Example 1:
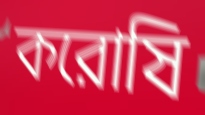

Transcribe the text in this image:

করোষি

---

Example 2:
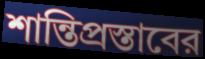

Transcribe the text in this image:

শান্তিপ্রস্তাবের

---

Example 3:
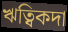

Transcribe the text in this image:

ঋত্বিকদা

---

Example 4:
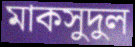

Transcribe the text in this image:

মাকসুদুল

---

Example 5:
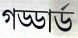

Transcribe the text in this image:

গড্ডার্ড